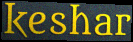
keshar